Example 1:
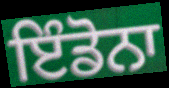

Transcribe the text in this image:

ਇੰਡੋਨਾ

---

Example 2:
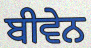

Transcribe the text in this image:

ਬੀਵੇਨ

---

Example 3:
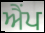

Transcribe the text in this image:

ਐਂਪ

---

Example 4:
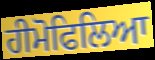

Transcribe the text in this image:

ਹੀਮੋਫਿਲਿਆ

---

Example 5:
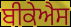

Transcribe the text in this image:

ਬੀਕੇਐਸ